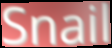
Snail